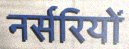
नर्सरियों